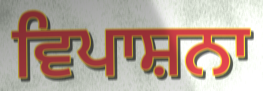
ਵਿਪਾਸ਼ਨਾ